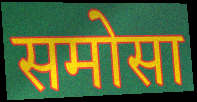
समोसा